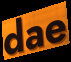
dae